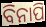
ବିନାପି